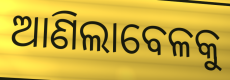
ଆଣିଲାବେଳକୁ